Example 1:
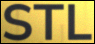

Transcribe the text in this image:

STL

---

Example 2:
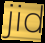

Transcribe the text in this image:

jid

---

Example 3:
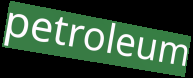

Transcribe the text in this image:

petroleum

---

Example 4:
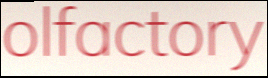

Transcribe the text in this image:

olfactory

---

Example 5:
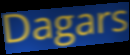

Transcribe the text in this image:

Dagars